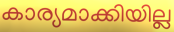
കാര്യമാക്കിയില്ല